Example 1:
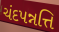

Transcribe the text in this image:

ચંદપન્નત્તિ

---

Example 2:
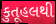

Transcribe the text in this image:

કુતૂહલથી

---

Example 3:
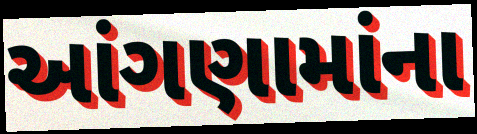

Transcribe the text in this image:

આંગણામાંના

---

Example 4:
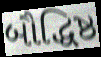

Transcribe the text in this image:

બૌદ્ધિષ્ઠ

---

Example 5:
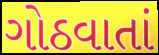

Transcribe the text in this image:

ગોઠવાતાં